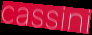
cassini